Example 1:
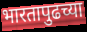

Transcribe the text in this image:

भारतापुढच्या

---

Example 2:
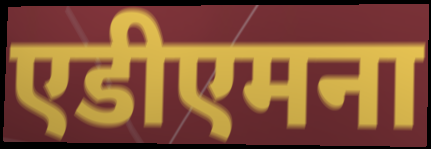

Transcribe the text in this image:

एडीएमना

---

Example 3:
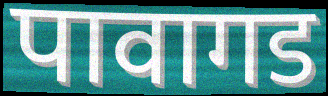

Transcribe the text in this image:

पावागड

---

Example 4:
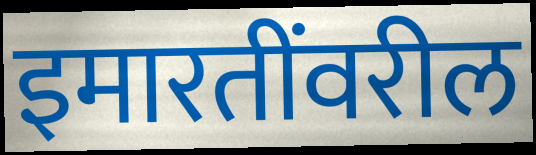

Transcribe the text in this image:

इमारतींवरील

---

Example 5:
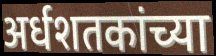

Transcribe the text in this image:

अर्धशतकांच्या